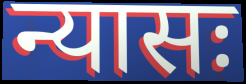
न्यासः